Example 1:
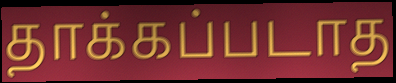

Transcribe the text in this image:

தாக்கப்படாத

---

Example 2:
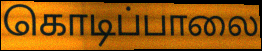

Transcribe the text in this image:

கொடிப்பாலை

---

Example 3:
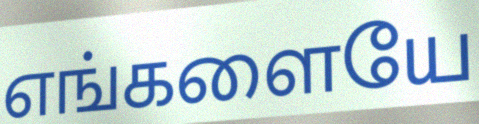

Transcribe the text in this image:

எங்களையே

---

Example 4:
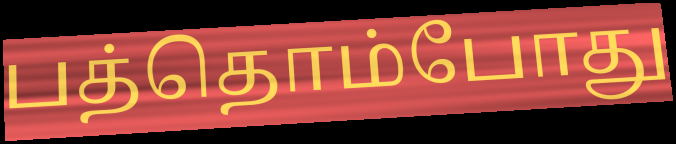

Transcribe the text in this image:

பத்தொம்போது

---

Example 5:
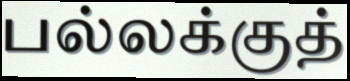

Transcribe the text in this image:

பல்லக்குத்